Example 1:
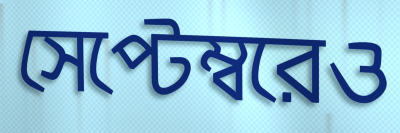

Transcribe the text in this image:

সেপ্টেম্বরেও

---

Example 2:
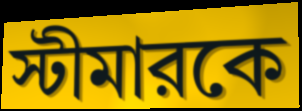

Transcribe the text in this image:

স্টীমারকে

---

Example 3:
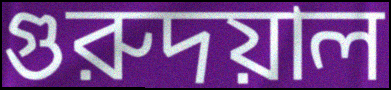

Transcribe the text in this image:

গুরুদয়াল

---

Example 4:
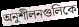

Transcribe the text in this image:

অনুশীলনগুলিকে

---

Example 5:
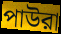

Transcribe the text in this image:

পাউরা